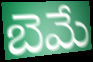
బెమే